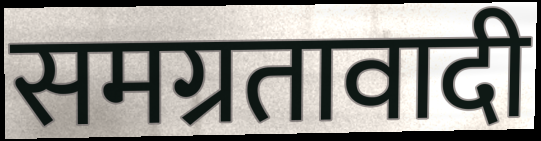
समग्रतावादी